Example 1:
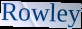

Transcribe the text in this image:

Rowley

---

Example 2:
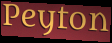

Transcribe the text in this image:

Peyton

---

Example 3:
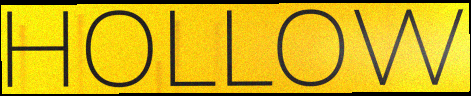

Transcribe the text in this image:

HOLLOW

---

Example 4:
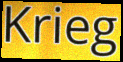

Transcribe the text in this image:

Krieg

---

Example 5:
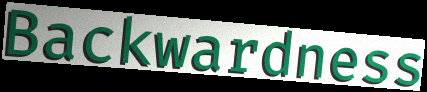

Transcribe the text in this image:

Backwardness